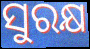
ସୁରକ୍ଷ